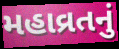
મહાવ્રતનું